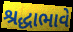
શ્રદ્ધાભાવે